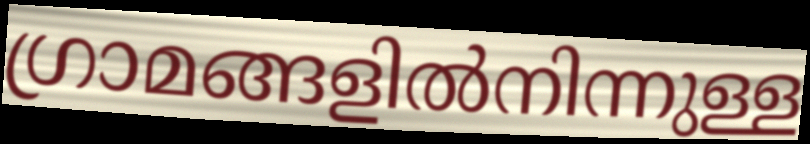
ഗ്രാമങ്ങളിൽനിന്നുള്ള